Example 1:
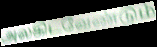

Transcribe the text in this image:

அலகிடவேண்டும்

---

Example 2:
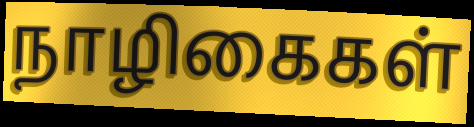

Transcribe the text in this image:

நாழிகைகள்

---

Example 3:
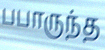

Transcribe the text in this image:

பபாருந்த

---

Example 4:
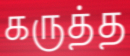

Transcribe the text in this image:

கருத்த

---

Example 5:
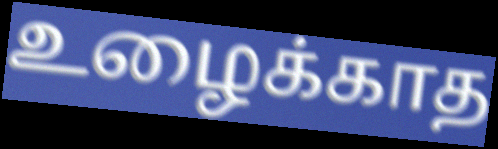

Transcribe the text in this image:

உழைக்காத